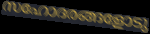
സഹോദരങ്ങളോടു